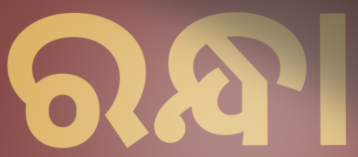
ରନ୍ଧା